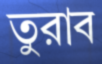
তুরাব